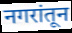
नगरांतून